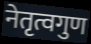
नेतृत्वगुण